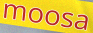
moosa